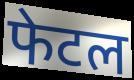
फेटल